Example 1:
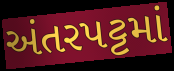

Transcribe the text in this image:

અંતરપટ્ટમાં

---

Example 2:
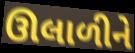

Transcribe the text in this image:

ઊલાળીને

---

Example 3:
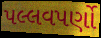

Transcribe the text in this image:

પલ્લવપર્ણો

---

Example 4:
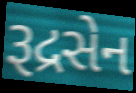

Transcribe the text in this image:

રૂદ્રસેન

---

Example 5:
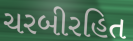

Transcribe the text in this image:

ચરબીરહિત